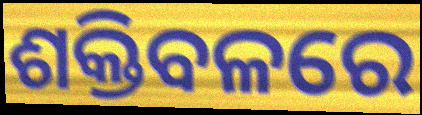
ଶକ୍ତିବଳରେ